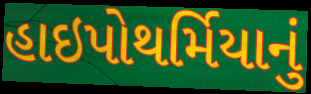
હાઇપોથર્મિયાનું